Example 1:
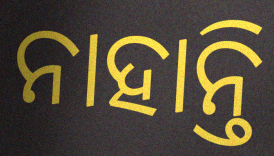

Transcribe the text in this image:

ନାହାନ୍ତି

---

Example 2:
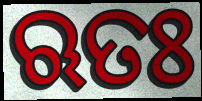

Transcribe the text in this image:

ଋତଃ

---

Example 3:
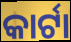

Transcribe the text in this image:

କାର୍ଟା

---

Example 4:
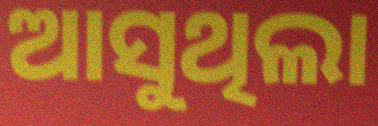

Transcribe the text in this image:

ଆସୁଥିଲା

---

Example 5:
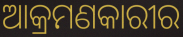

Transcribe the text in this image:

ଆକ୍ରମଣକାରୀର